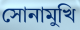
সোনামুখি